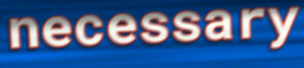
necessary